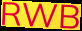
RWB